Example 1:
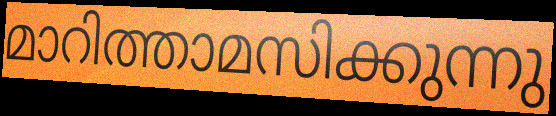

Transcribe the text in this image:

മാറിത്താമസിക്കുന്നു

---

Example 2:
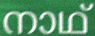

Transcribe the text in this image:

നാഥ്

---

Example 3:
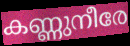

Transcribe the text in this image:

കണ്ണുനീരേ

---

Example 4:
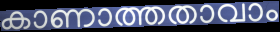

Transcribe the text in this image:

കാണാത്തതാവാം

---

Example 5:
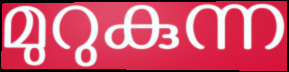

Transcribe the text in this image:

മുറുകുന്ന